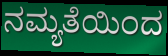
ನಮ್ಯತೆಯಿಂದ